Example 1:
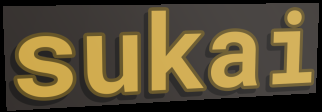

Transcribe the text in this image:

sukai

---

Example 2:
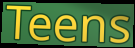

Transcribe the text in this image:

Teens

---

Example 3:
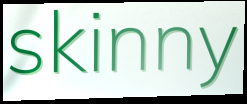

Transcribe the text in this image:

skinny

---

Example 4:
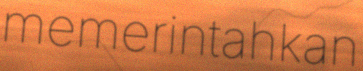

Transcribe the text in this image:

memerintahkan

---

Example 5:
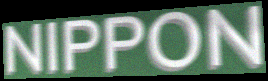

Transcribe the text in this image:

NIPPON